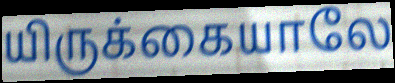
யிருக்கையாலே